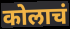
कोलाचं